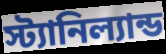
স্ট্যানিল্যান্ড